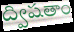
ద్విషతాం